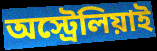
অস্ট্রেলিয়াই